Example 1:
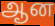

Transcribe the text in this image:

ஆன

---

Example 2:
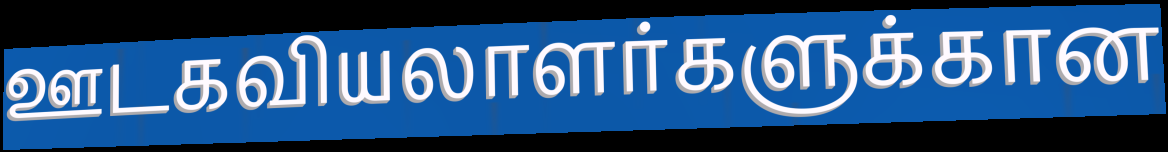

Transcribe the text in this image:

ஊடகவியலாளர்களுக்கான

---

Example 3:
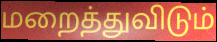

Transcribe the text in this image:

மறைத்துவிடும்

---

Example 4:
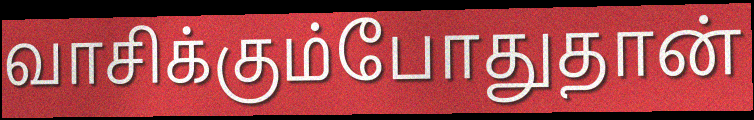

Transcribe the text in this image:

வாசிக்கும்போதுதான்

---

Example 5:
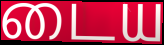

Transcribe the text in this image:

டைய